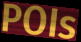
POIs